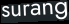
surang